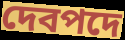
দেবপদে